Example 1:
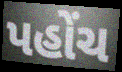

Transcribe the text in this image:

પહોંચ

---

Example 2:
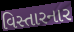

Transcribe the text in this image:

વિસ્તારનાર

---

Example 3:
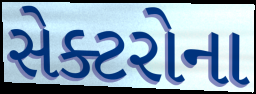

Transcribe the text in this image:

સેક્ટરોના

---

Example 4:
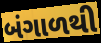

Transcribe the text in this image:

બંગાળથી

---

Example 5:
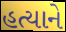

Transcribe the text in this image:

હત્યાને